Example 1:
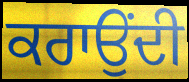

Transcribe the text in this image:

ਕਰਾਉਂਦੀ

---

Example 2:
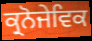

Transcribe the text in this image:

ਕ੍ਰਨੋਜੇਵਿਕ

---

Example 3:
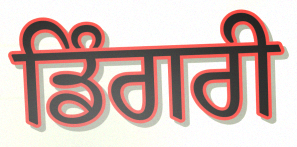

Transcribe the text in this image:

ਡਿੰਗਰੀ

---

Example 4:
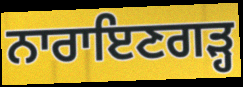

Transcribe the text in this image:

ਨਾਰਾਇਣਗੜ੍ਹ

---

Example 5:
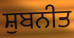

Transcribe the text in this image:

ਸ਼ੁਬਨੀਤ